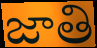
జాతి